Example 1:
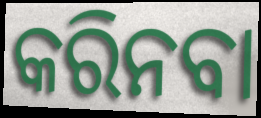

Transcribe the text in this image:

କରିନବା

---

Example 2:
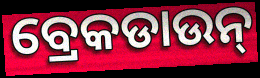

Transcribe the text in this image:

ବ୍ରେକଡାଉନ୍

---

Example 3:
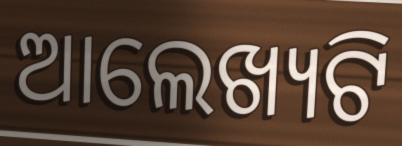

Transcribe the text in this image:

ଆଲେଖ୍ୟଟି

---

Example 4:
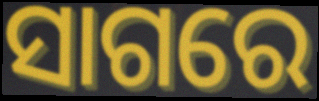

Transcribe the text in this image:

ସାଗରେ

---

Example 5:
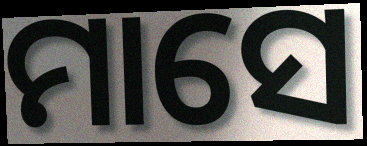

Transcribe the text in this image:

ମାସେ